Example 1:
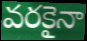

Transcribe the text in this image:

వరకైనా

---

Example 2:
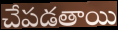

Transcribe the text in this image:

చేపడతాయి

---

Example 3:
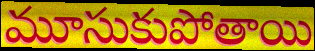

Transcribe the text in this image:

మూసుకుపోతాయి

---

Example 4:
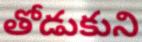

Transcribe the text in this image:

తోడుకుని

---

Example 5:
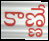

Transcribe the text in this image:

కాణ్ణే